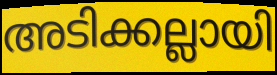
അടിക്കല്ലായി